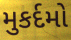
મુકર્દમો